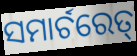
ସମାର୍ଚରେତ୍